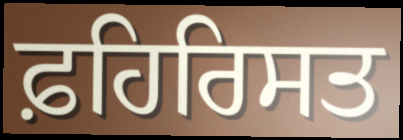
ਫ਼ਹਿਰਿਸਤ